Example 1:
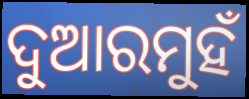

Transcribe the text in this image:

ଦୁଆରମୁହଁ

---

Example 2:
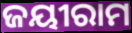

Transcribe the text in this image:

ଜୟୀରାମ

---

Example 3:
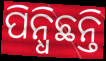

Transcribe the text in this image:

ପିନ୍ଧିଛନ୍ତି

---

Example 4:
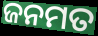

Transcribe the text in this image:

ଜନମତ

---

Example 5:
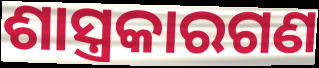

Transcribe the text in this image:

ଶାସ୍ତ୍ରକାରଗଣ